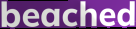
beached